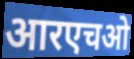
आरएचओ